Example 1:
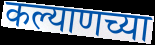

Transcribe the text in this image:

कल्याणच्या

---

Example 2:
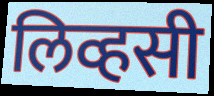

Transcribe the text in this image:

लिव्हसी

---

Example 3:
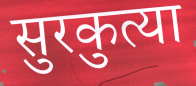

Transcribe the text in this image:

सुरकुत्या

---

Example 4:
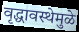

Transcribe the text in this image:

वृद्धावस्थेमुळे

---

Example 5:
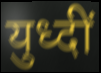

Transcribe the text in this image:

युध्दीं